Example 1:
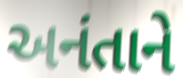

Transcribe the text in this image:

અનંતાને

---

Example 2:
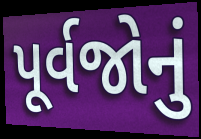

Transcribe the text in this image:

પૂર્વજોનું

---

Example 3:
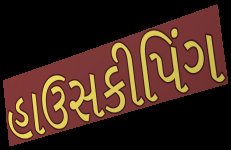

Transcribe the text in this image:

હાઉસકીપિંગ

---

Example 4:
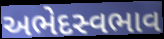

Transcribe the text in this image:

અભેદસ્વભાવ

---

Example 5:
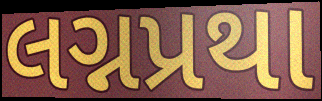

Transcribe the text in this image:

લગ્નપ્રથા